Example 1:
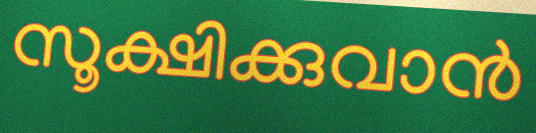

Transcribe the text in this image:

സൂക്ഷിക്കുവാൻ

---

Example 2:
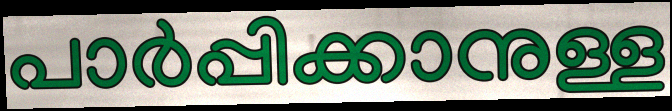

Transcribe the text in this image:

പാർപ്പിക്കാനുള്ള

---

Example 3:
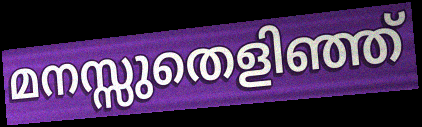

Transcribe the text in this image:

മനസ്സുതെളിഞ്ഞ്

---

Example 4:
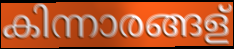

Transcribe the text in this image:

കിന്നാരങ്ങള്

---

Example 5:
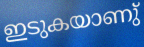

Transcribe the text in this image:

ഇടുകയാണു്